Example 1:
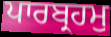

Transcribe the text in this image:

ਪਾਰਬ੍ਰਹਮੁ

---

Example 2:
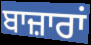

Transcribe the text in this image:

ਬਾਜ਼ਾਰਾਂ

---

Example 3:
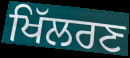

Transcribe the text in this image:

ਖਿੱਲਰਣ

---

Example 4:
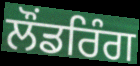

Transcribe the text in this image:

ਲੌਂਡਰਿੰਗ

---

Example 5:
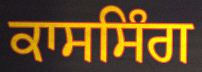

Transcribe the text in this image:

ਕਾਸਸਿੰਗ